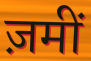
ज़मीं